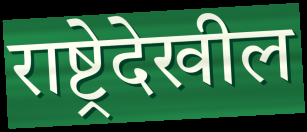
राष्ट्रेदेखील